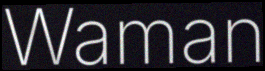
Waman